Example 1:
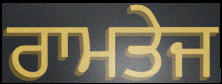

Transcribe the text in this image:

ਰਾਮਤੇਜ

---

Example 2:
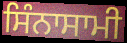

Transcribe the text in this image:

ਸਿੰਨਾਸਾਮੀ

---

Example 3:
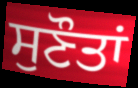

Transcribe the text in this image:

ਸੁਣੌਤਾਂ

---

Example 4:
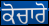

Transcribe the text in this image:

ਕੋਚਾਰੋ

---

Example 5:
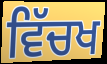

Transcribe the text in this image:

ਵਿੱਚਖ